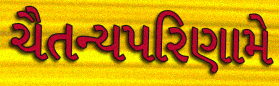
ચૈતન્યપરિણામે